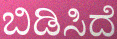
ಬಿಡಿಸಿದೆ